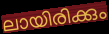
ലായിരിക്കും